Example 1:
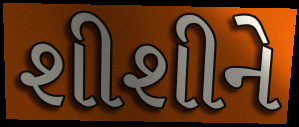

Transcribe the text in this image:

શીશીને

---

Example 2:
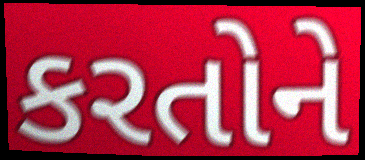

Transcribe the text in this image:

કરતોને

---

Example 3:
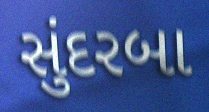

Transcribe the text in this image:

સુંદરબા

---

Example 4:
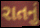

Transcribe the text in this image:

રાતનું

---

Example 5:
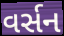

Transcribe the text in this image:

વર્સન